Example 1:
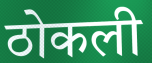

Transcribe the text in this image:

ठोकली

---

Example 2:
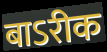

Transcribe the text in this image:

बाऽरीक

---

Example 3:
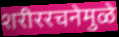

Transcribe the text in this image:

शरीररचनेमुळे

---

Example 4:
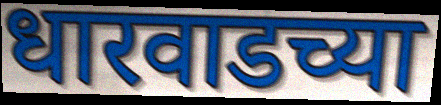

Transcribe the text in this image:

धारवाडच्या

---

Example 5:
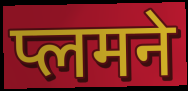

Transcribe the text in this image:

प्लमने